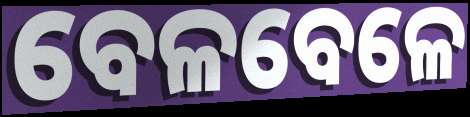
ବେଳବେଳେ